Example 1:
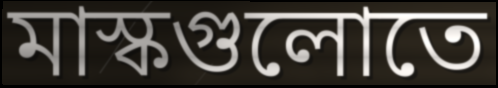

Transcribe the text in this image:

মাস্কগুলোতে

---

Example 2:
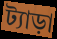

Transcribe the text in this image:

ট্যাড়া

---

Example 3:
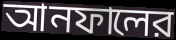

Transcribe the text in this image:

আনফালের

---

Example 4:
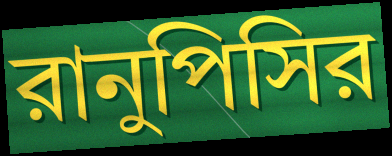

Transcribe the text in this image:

রানুপিসির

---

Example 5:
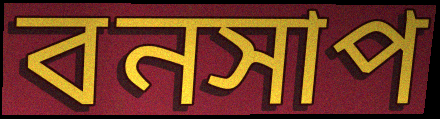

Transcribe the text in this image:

বনসাপ